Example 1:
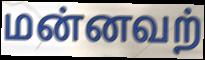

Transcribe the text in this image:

மன்னவற்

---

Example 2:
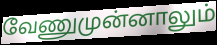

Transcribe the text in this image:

வேணுமுன்னாலும்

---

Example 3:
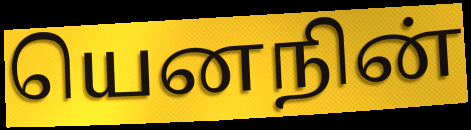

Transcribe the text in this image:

யெனநின்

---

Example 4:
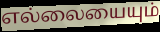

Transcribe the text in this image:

எல்லையையும்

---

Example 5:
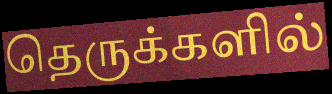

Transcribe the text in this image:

தெருக்களில்